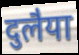
दुलैया